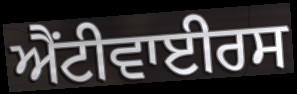
ਐਂਟੀਵਾਈਰਸ